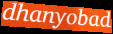
dhanyobad